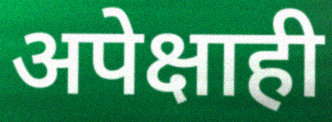
अपेक्षाही